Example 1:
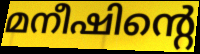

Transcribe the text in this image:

മനീഷിന്റെ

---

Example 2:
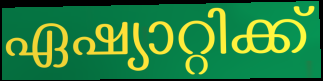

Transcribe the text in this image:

ഏഷ്യാറ്റിക്ക്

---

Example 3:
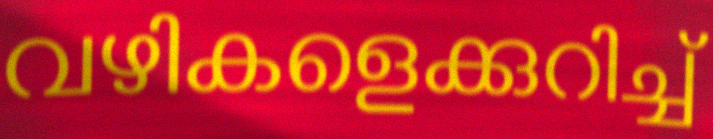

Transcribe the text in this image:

വഴികളെക്കുറിച്ച്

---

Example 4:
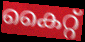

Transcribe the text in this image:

കൈറ്റ്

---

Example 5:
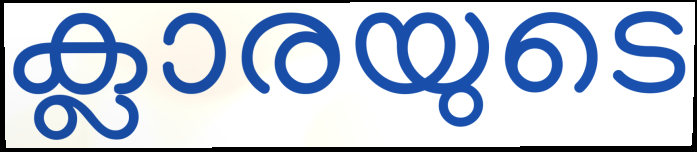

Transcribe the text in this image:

ക്ലാരയുടെ